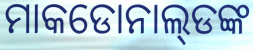
ମାକଡୋନାଲ୍‍ଡଙ୍କ